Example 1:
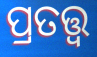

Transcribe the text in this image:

ପ୍ରତତ୍ତ୍ୱ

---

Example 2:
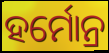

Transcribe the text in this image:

ହର୍ମୋନ୍ର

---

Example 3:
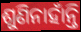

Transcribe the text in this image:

ଶୁଣିନାହାଁନ୍ତି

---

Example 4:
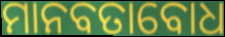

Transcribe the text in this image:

ମାନବତାବୋଧ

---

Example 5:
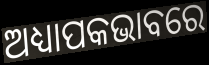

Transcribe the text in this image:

ଅଧ୍ୟାପକଭାବରେ